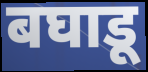
बघाडू